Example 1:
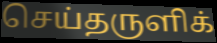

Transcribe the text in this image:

செய்தருளிக்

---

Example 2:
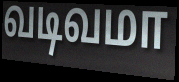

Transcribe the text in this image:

வடிவமா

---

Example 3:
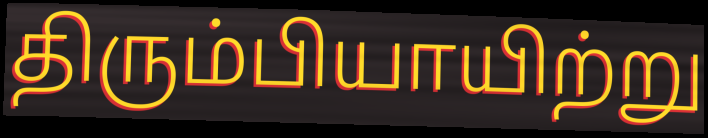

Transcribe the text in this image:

திரும்பியாயிற்று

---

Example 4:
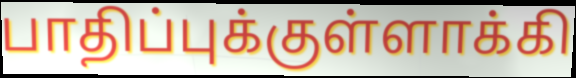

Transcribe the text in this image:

பாதிப்புக்குள்ளாக்கி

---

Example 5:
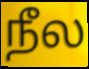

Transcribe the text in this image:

நீல